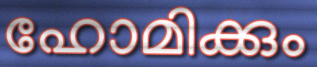
ഹോമിക്കും